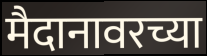
मैदानावरच्या